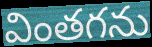
వింతగను